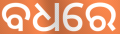
ବଧରେ